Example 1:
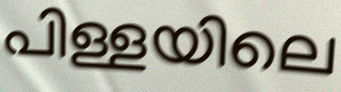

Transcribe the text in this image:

പിള്ളയിലെ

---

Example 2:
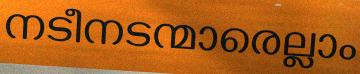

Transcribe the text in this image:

നടീനടന്മാരെല്ലാം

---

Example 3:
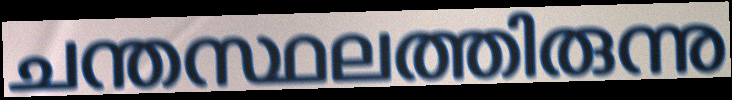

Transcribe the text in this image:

ചന്തസ്ഥലത്തിരുന്നു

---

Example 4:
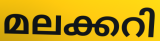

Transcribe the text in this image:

മലക്കറി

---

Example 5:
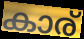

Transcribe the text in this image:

കാര്